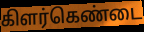
கிளர்கெண்டை